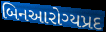
બિનઆરોગ્યપ્રદ